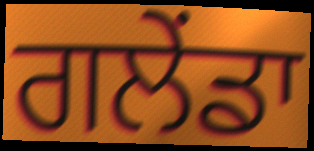
ਗਲੇਂਡਾ